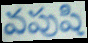
వపుషి